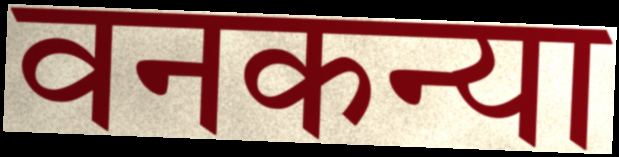
वनकन्या